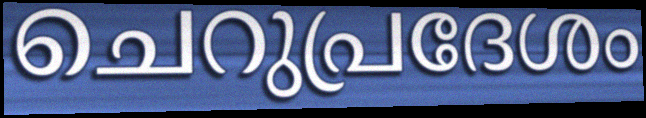
ചെറുപ്രദേശം